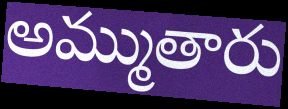
అమ్ముతారు